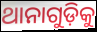
ଥାନାଗୁଡ଼ିକୁ